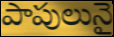
పాపులునై